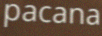
pacana